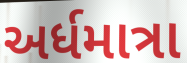
અર્ધમાત્રા